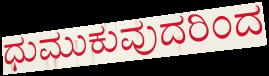
ಧುಮುಕುವುದರಿಂದ